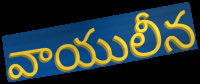
వాయులీన